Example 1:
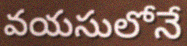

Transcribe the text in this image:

వయసులోనే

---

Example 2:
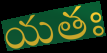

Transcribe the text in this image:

యతః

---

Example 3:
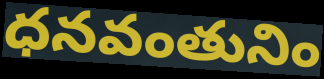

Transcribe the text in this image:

ధనవంతునిం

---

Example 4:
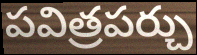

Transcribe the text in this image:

పవిత్రపర్చు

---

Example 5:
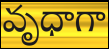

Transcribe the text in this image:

వృధాగా